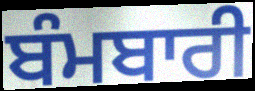
ਬੰਮਬਾਰੀ